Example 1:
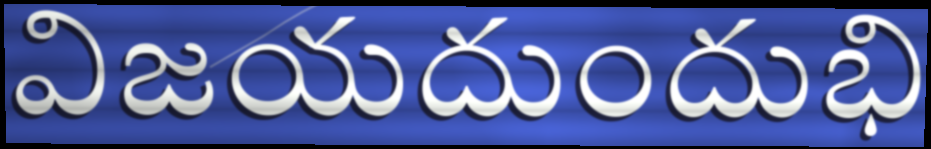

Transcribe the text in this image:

విజయదుందుభి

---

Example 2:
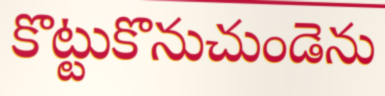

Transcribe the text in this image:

కొట్టుకొనుచుండెను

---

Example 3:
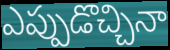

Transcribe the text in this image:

ఎప్పుడొచ్చినా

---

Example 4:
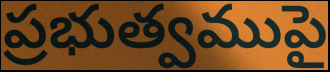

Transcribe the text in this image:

ప్రభుత్వముపై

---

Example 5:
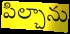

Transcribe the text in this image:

పిల్చాను